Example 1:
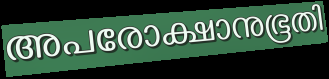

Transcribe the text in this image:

അപരോക്ഷാനുഭൂതി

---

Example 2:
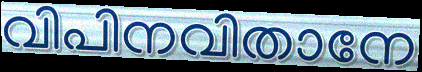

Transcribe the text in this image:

വിപിനവിതാനേ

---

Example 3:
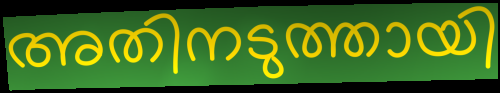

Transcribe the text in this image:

അതിനടുത്തായി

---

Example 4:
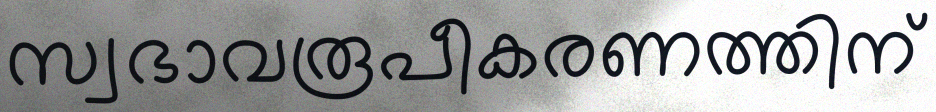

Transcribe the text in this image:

സ്വഭാവരൂപീകരണത്തിന്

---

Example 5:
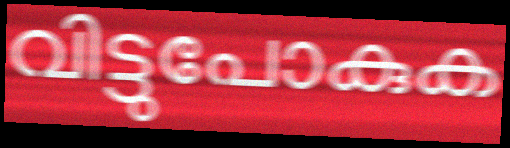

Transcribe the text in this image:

വിട്ടുപോകുക